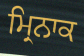
ਮ੍ਰਿਨਾਕ